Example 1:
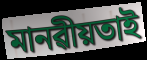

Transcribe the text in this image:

মানৱীয়তাই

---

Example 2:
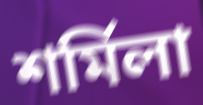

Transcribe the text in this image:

শৰ্মিলা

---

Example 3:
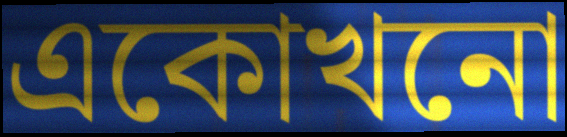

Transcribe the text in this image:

একোখনো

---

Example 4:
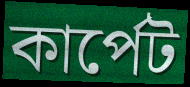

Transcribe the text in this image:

কাৰ্পেট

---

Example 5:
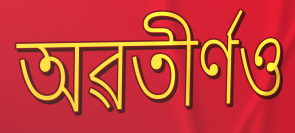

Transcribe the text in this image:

অৱতীৰ্ণও